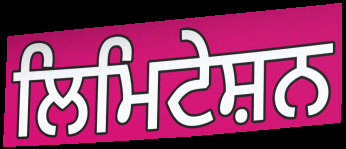
ਲਿਮਿਟੇਸ਼ਨ